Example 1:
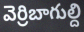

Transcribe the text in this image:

వెర్రిబాగుల్ది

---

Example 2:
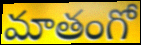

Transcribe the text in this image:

మాతంగో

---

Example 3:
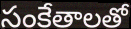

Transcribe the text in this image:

సంకేతాలతో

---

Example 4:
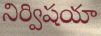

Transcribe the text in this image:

నిర్విషయా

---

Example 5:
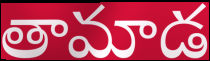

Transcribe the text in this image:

తామాడ